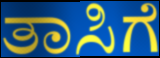
ತಾಸಿಗೆ